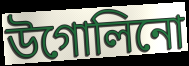
উগোলিনো